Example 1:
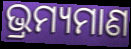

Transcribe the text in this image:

ଭ୍ରମ୍ୟମାଣ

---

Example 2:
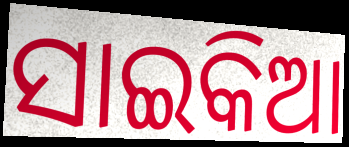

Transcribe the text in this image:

ସାଇକିଆ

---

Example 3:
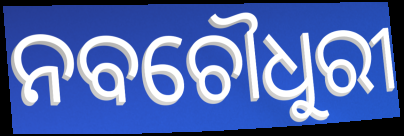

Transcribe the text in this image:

ନବଚୌଧୁରୀ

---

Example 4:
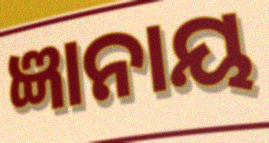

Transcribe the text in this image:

ଜ୍ଞାନାୟ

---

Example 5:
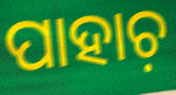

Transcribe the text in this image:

ପାହାଚ଼